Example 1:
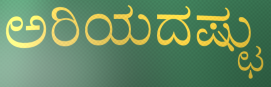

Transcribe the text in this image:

ಅರಿಯದಷ್ಟು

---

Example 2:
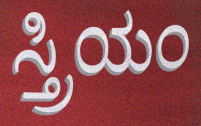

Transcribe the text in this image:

ಸ್ತ್ರಿಯಂ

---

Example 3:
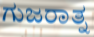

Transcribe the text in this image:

ಗುಜರಾತ್ನ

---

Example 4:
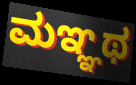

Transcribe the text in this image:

ಮಞ್ಞಥ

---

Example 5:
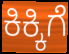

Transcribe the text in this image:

ಕಿಕ್ಕಿಗೆ